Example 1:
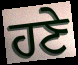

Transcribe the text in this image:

ਹਣੇ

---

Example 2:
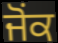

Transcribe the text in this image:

ਜੋਂਕ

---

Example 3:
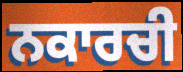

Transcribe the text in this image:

ਨਕਾਰਚੀ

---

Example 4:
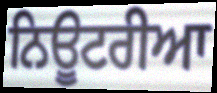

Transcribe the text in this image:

ਨਿਊਟਰੀਆ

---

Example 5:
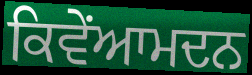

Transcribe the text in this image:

ਕਿਵੇਂਆਮਦਨ